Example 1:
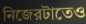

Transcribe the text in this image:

নিজেরটাতেও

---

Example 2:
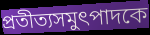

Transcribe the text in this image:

প্রতীত্যসমুৎপাদকে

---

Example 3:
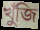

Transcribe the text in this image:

খুঁজি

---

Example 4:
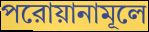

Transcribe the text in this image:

পরোয়ানামূলে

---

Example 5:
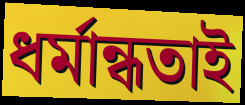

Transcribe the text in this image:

ধর্মান্ধতাই